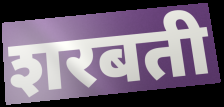
शरबती